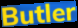
Butler